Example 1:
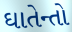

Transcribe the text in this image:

ઘાતેન્તો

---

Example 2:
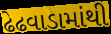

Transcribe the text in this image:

ઢેઢવાડામાંથી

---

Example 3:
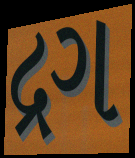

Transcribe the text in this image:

દ્રગ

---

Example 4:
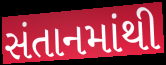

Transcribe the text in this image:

સંતાનમાંથી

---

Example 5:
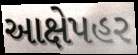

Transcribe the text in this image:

આક્ષેપહર